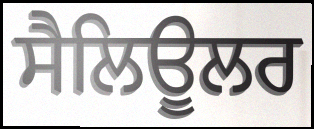
ਸੈਲਿਊਲਰ